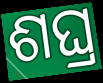
ଶଘ୍ର